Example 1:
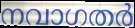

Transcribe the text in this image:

നവാഗതർ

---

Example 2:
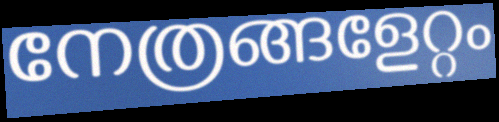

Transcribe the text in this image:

നേത്രങ്ങളേറ്റം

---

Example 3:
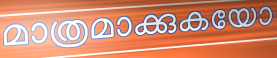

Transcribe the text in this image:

മാത്രമാക്കുകയോ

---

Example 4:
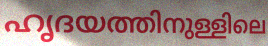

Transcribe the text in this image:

ഹൃദയത്തിനുള്ളിലെ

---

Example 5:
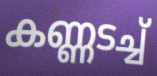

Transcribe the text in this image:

കണ്ണടച്ച്